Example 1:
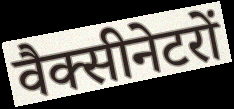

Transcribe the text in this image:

वैक्सीनेटरों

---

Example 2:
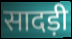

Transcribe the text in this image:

सादड़ी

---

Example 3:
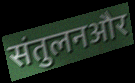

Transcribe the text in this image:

संतुलनऔर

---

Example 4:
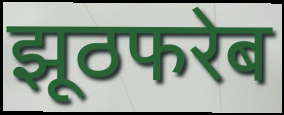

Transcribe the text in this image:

झूठफरेब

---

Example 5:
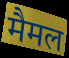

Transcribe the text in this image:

मैमल